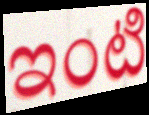
ఇంటి